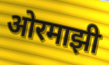
ओरमाझी